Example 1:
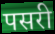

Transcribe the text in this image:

पसरी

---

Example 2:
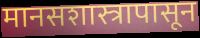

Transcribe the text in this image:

मानसशास्त्रापासून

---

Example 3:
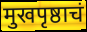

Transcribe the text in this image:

मुखपृष्ठाचं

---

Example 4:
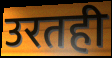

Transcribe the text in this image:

उरतही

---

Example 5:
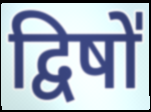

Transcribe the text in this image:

द्विषो॑